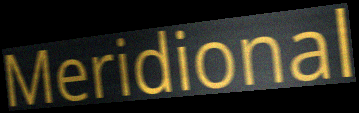
Meridional